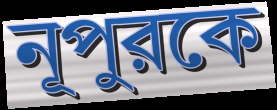
নূপুরকে